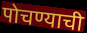
पोचण्याची